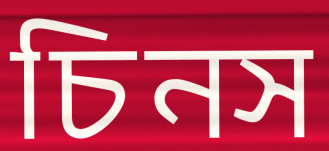
চিনস